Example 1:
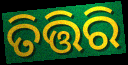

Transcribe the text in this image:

ତିତ୍ତିରି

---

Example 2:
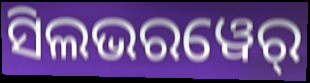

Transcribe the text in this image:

ସିଲଭରୱେର୍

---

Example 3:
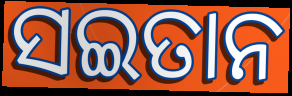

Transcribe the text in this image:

ସଇତାନ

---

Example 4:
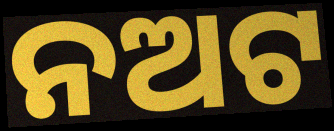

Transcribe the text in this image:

ନଅଟ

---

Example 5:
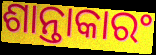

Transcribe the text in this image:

ଶାନ୍ତାକାରଂ